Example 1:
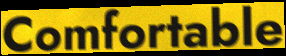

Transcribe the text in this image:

Comfortable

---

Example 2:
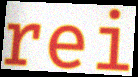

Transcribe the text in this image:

rei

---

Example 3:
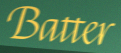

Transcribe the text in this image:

Batter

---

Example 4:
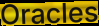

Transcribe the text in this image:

Oracles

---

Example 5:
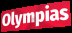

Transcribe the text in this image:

Olympias